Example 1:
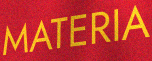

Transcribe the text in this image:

MATERIA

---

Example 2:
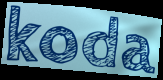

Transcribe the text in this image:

koda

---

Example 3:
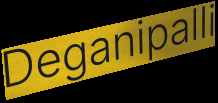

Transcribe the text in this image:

Deganipalli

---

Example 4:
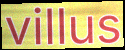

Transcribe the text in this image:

villus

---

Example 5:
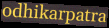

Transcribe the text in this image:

odhikarpatra